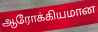
ஆரோக்கியமான